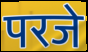
परजे